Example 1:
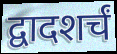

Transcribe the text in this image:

द्वादशर्चं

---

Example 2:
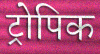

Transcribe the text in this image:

ट्रोपिक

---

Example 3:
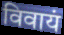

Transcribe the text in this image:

विवायं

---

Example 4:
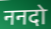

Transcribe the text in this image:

ननदो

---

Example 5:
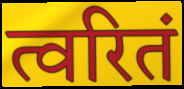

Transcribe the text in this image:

त्वरितं